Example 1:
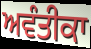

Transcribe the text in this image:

ਅਵੰਤੀਕਾ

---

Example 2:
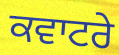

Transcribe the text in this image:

ਕਵਾਟਰੇ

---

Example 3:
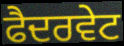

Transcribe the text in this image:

ਫੈਦਰਵੇਟ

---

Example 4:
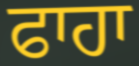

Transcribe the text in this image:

ਫਾਹਾ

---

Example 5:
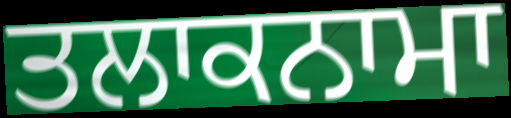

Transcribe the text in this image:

ਤਲਾਕਨਾਮਾ